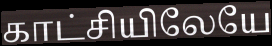
காட்சியிலேயே